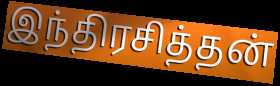
இந்திரசித்தன்